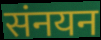
संनयन